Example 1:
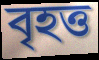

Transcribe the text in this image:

বৃহত্ত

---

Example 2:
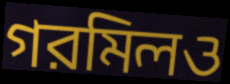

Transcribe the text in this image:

গরমিলও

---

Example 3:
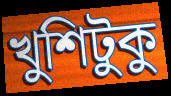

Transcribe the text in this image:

খুশিটুকু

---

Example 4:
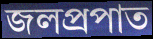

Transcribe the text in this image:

জলপ্রপাত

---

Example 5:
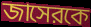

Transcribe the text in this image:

জাসেরকে